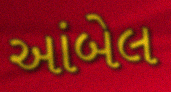
આંબેલ